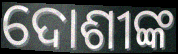
ଦୋଶୀଙ୍କ